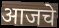
आजचे